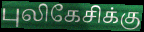
புலிகேசிக்கு